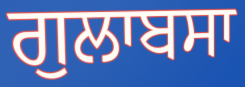
ਗੁਲਾਬਸਾ